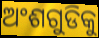
ଅଂଶଗୁଡିକୁ